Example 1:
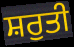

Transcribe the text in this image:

ਸ਼ਰੁਤੀ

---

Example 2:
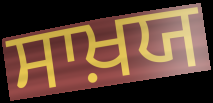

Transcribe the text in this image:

ਸਾਖ਼ਯ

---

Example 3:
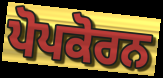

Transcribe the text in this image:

ਪੋਪਕੋਰਨ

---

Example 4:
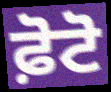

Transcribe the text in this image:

ਫ਼ੋਟੋ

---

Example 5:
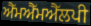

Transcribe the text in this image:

ਐੱਮਐੱਮਐੱਲਪੀ